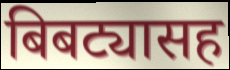
बिबट्यासह